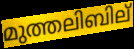
മുത്തലിബില്